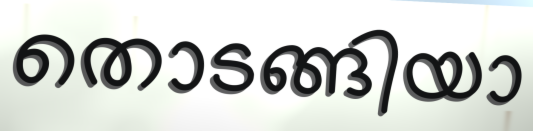
തൊടങ്ങിയാ